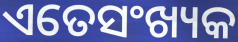
ଏତେସଂଖ୍ୟକ